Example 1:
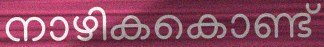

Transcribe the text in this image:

നാഴികകൊണ്ട്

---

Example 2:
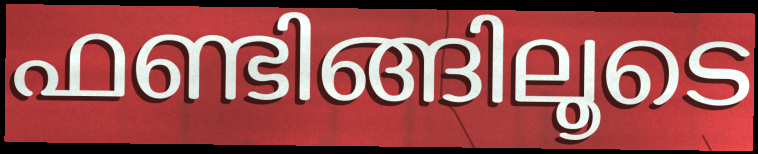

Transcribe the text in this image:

ഫണ്ടിങ്ങിലൂടെ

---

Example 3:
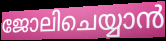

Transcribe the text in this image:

ജോലിചെയ്യാൻ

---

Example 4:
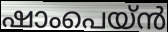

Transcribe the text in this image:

ഷാംപെയ്ൻ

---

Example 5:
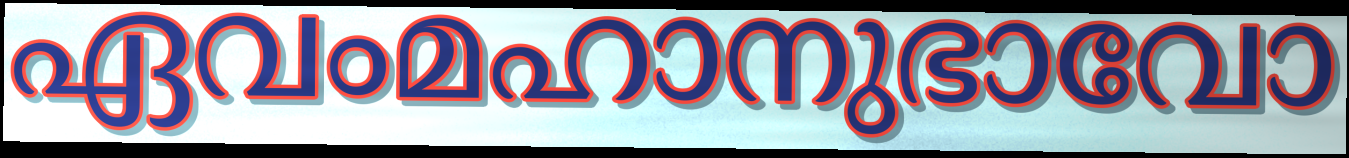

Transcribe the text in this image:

ഏവംമഹാനുഭാവോ